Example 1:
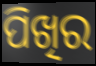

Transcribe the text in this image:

ପିଖିର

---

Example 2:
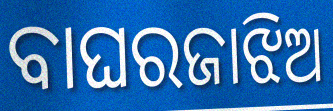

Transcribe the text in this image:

ବାଘରଜାଝିଅ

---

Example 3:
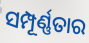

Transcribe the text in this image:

ସମ୍ପୂର୍ଣ୍ଣତାର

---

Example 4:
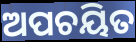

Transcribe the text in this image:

ଅପଚୟିତ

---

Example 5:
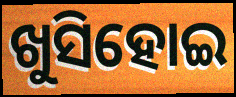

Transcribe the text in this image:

ଖୁସିହୋଇ